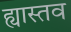
ह्यास्तव